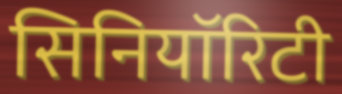
सिनियॉरिटी